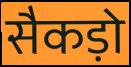
सैकड़ो